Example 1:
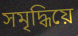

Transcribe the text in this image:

সমৃদ্ধিয়ে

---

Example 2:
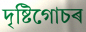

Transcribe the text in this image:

দৃষ্টিগোচৰ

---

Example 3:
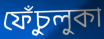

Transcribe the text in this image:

ফেঁচুলুকা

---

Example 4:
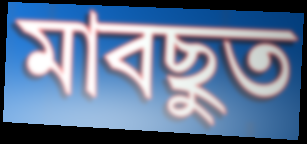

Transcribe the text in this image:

মাবছুত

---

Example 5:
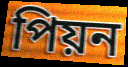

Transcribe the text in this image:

পিয়ন